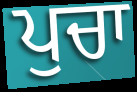
ਪੁਚਾ